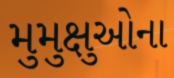
મુમુક્ષુઓના